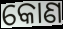
କୋଣ